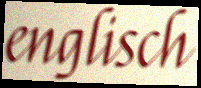
englisch